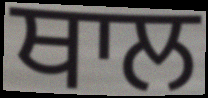
ਥਾਲ